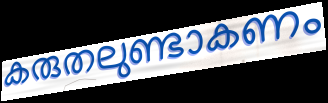
കരുതലുണ്ടാകണം